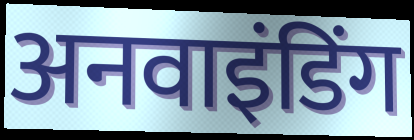
अनवाइंडिंग